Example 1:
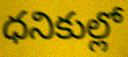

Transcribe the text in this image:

ధనికుల్లో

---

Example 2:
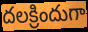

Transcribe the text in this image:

దలక్రిందుగా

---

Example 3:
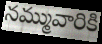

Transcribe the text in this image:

నమ్మువారికి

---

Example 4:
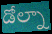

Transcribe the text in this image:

డోల్నా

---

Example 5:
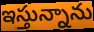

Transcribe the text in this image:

ఇస్తున్నాను